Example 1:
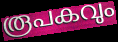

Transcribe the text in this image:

രൂപകവും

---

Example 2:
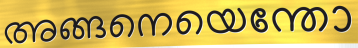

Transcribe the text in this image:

അങ്ങനെയെന്തോ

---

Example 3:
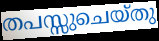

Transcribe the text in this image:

തപസ്സുചെയ്തു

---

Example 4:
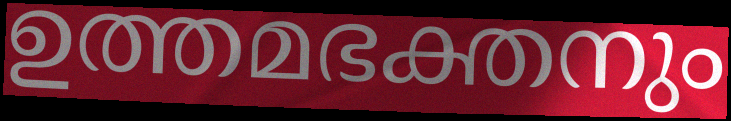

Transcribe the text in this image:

ഉത്തമഭക്തനും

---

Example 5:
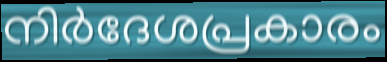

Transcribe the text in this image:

നിർദേശപ്രകാരം